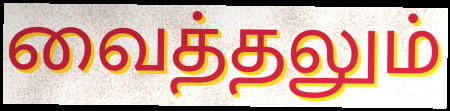
வைத்தலும்